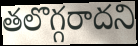
తలొగ్గరాదని